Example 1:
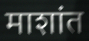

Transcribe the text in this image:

माशांत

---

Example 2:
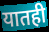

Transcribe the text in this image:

यातही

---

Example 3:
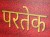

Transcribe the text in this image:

परतेक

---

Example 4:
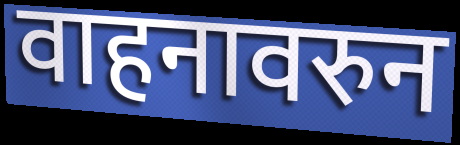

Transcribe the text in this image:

वाहनावरुन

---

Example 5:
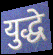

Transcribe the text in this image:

युद्धे